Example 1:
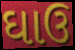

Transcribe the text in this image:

ઘાઉ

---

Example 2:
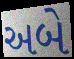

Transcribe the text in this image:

અબે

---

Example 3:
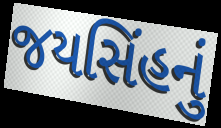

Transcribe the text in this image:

જયસિંહનું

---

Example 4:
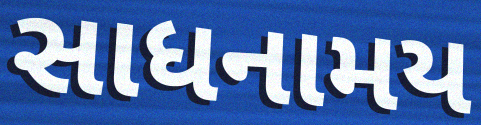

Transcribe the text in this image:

સાધનામય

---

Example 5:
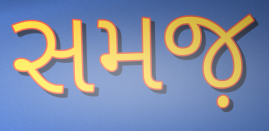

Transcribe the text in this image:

સમજ઼